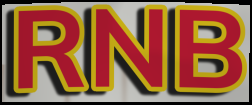
RNB